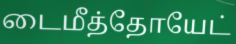
டைமீத்தோயேட்